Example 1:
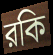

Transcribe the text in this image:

রকি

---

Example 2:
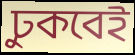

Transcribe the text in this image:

ঢুকবেই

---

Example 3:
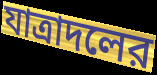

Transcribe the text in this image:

যাত্রাদলের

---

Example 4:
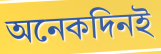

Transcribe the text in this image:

অনেকদিনই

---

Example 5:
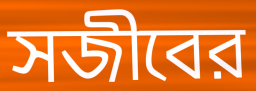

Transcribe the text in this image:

সজীবের